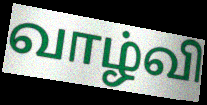
வாழ்வி